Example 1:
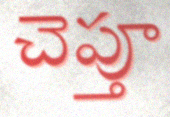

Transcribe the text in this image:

చెప్తూ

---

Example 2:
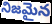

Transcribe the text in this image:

నిజమైన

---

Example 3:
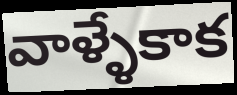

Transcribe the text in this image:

వాళ్ళేకాక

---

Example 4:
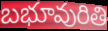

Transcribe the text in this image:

బభూవురితి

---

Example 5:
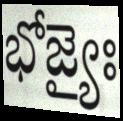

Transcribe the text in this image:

భోజ్యైః